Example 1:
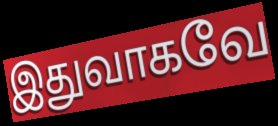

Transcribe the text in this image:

இதுவாகவே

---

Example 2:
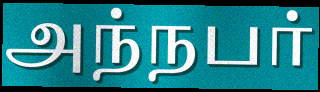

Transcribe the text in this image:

அந்நபர்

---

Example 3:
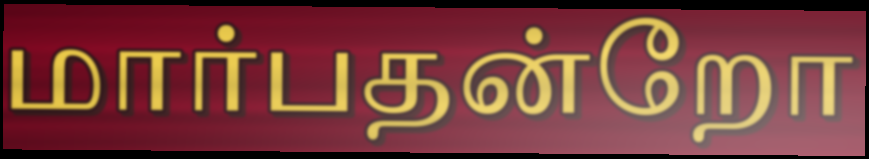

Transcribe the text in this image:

மார்பதன்றோ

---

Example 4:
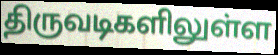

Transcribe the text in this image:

திருவடிகளிலுள்ள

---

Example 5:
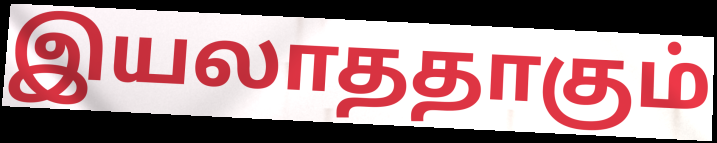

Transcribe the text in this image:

இயலாததாகும்